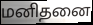
மனிதனை